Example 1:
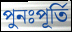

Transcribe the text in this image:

পুনঃপূৰ্তি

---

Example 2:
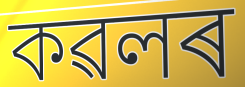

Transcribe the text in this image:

কৱলৰ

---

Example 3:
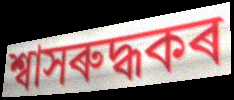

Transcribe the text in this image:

শ্বাসৰুদ্ধকৰ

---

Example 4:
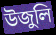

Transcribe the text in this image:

উজুলি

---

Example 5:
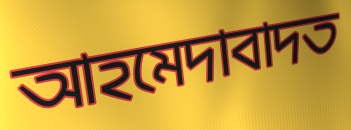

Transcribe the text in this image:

আহমেদাবাদত